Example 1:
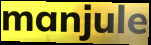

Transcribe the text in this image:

manjule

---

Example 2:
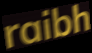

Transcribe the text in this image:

raibh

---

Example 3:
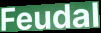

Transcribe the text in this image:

Feudal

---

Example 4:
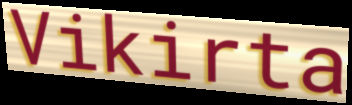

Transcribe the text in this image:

Vikirta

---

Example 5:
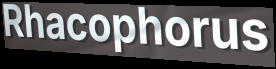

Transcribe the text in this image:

Rhacophorus